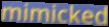
mimicked